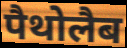
पैथोलैब